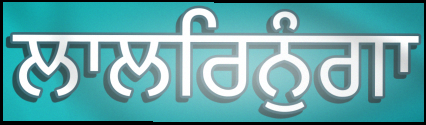
ਲਾਲਰਿਨੁੰਗਾ